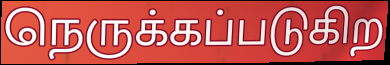
நெருக்கப்படுகிற